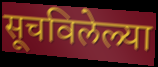
सूचविलेल्या